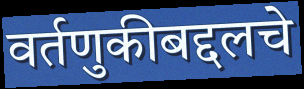
वर्तणुकीबद्दलचे